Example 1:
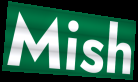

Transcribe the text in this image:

Mish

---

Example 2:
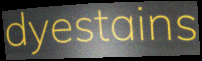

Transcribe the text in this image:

dyestains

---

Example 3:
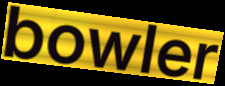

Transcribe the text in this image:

bowler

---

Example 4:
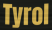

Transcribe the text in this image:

Tyrol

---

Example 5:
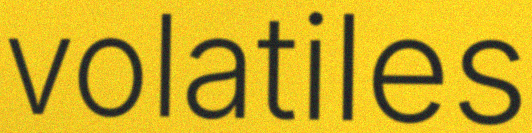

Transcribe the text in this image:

volatiles